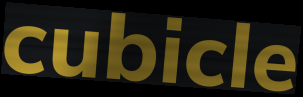
cubicle